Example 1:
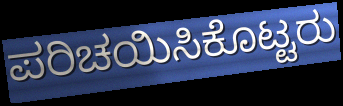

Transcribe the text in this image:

ಪರಿಚಯಿಸಿಕೊಟ್ಟರು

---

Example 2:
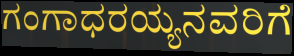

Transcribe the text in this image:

ಗಂಗಾಧರಯ್ಯನವರಿಗೆ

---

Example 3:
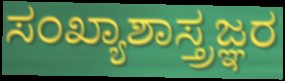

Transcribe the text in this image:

ಸಂಖ್ಯಾಶಾಸ್ತ್ರಜ್ಞರ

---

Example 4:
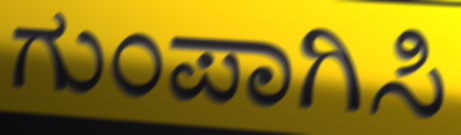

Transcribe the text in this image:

ಗುಂಪಾಗಿಸಿ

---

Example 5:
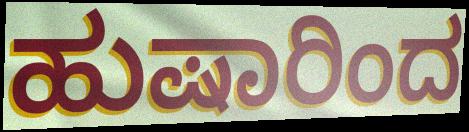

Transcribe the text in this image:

ಹುಷಾರಿಂದ